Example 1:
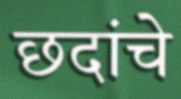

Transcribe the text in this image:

छदांचे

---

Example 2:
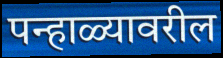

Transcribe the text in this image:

पन्हाळ्यावरील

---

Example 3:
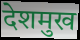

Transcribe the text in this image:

देशमुख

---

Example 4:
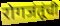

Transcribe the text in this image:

रोगजंतूंची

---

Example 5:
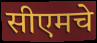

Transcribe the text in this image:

सीएमचे